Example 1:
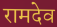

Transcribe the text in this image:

रामदेव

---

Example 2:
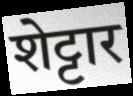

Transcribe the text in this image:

शेट्टार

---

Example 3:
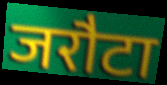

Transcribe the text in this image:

जरौटा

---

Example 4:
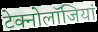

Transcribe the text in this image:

टेक्नोलॉजियां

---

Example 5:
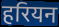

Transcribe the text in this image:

हरियन